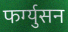
फर्ग्युसन